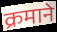
क्रमाने